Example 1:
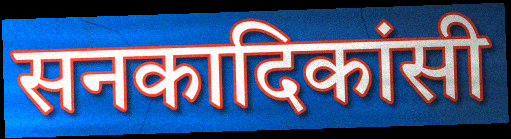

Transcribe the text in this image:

सनकादिकांसी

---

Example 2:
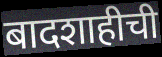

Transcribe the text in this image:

बादशाहीची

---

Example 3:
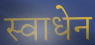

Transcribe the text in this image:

स्वाधेन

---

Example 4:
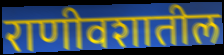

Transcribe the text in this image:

राणीवशातील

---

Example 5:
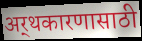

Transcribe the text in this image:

अर्थकारणासाठी